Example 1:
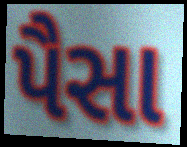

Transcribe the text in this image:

પૈસા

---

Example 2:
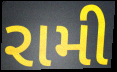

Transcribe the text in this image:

રામી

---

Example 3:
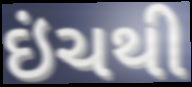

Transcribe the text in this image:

ઇંચથી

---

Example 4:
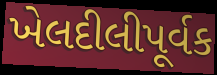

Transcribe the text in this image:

ખેલદીલીપૂર્વક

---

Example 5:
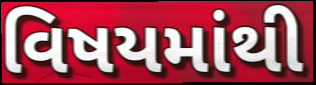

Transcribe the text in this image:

વિષયમાંથી